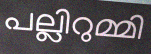
പല്ലിറുമ്മി